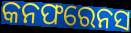
କନଫରେନସ